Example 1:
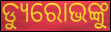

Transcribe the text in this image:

ଡ୍ୟୁରୋଭଙ୍କୁ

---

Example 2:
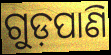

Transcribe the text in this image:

ଗୁଡ଼ପାଣି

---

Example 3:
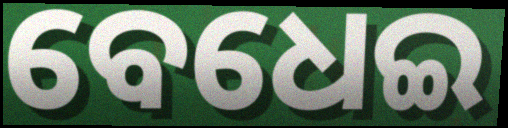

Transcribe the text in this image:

ବେଧେଇ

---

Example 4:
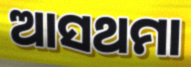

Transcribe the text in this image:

ଆସଥମା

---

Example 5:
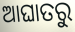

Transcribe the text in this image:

ଆଘାତରୁ